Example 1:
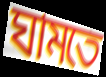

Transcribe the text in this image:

ঘামতে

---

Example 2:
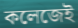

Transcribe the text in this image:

কলেজেই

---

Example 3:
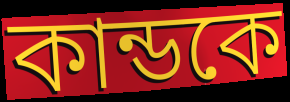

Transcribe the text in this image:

কান্ডকে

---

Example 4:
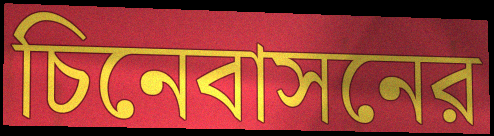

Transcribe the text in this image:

চিনেবাসনের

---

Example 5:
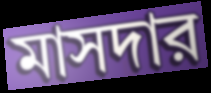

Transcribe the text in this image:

মাসদার